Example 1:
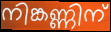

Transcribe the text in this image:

നിങ്കണ്ണിന്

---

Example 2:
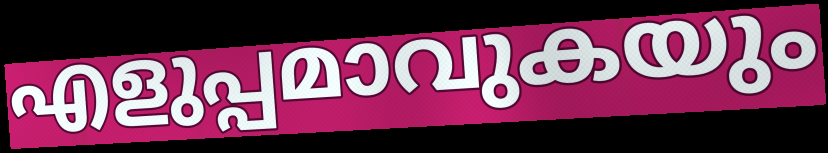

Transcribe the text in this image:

എളുപ്പമാവുകയും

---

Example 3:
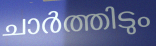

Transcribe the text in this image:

ചാർത്തിടും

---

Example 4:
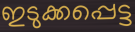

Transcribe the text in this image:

ഇടുക്കപ്പെട്ട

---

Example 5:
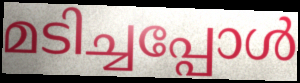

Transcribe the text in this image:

മടിച്ചപ്പോൾ